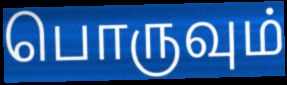
பொருவும்